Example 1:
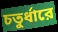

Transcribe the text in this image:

চতুর্ধারে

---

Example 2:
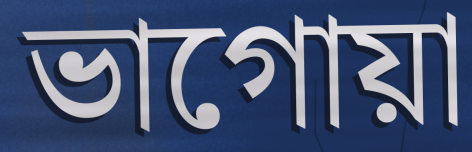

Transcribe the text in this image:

ভাগোয়া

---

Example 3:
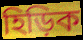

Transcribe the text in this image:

হিড়িক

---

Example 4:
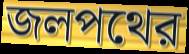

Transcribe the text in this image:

জলপথের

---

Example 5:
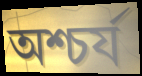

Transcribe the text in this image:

অশ্চর্য